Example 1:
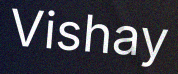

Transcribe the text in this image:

Vishay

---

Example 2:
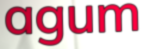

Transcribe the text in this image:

agum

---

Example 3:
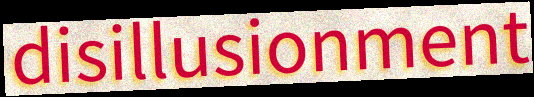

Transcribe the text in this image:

disillusionment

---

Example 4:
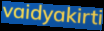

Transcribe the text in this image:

vaidyakirti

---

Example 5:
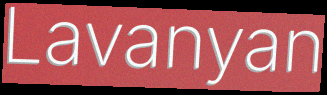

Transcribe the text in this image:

Lavanyan